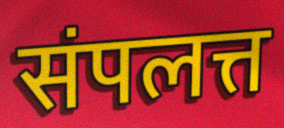
संपलत्त